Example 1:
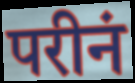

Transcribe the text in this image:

परीनं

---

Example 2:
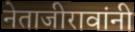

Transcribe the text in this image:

नेताजीरावांनी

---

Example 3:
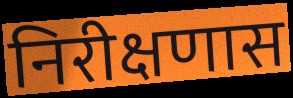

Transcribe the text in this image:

निरीक्षणास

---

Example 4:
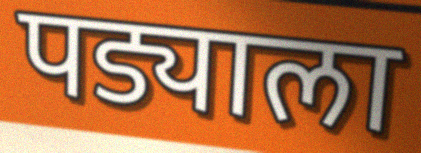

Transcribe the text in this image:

पड्याला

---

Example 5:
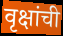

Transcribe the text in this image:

वृक्षांची